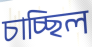
চাচ্ছিল